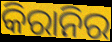
କିରାନିର